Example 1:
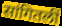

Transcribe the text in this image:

सांगितलीं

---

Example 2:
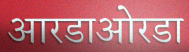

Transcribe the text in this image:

आरडाओरडा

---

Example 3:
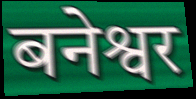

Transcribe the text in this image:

बनेश्वर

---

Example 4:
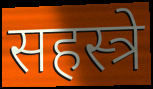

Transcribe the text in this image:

सहस्त्रे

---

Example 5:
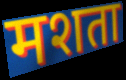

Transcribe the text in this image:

मशता